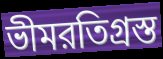
ভীমরতিগ্রস্ত